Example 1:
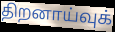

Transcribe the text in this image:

திறனாய்வுக்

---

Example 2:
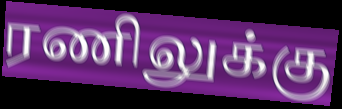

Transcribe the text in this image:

ரணிலுக்கு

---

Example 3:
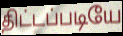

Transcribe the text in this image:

திட்டப்படியே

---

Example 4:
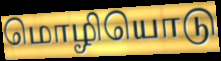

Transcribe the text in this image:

மொழியொடு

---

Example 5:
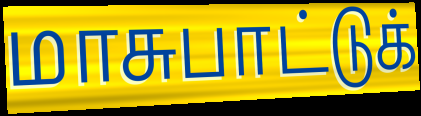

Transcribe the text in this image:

மாசுபாட்டுக்